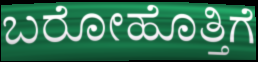
ಬರೋಹೊತ್ತಿಗೆ